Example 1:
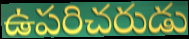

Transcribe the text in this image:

ఉపరిచరుడు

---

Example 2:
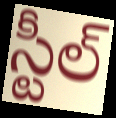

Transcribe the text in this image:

స్టీల్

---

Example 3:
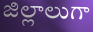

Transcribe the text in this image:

జిల్లాలుగా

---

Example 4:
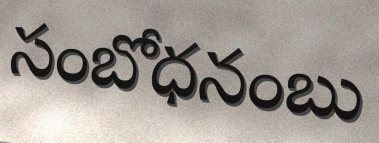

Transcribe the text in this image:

సంబోధనంబు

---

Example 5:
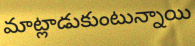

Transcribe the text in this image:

మాట్లాడుకుంటున్నాయి